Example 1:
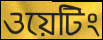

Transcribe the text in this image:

ওয়েটিং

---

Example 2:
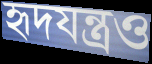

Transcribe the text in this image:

হৃদযন্ত্রও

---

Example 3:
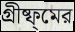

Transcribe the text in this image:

গ্রীষ্ফ্মের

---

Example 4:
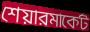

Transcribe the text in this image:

শেয়ারমার্কেট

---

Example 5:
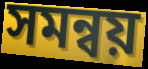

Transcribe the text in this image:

সমন্বয়